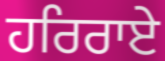
ਹਰਿਰਾਏ